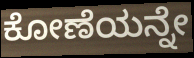
ಕೋಣೆಯನ್ನೇ